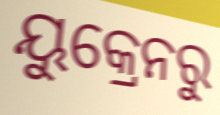
ୟୁକ୍ରେନରୁ